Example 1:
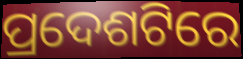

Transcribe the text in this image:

ପ୍ରଦେଶଟିରେ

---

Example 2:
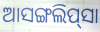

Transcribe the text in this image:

ଆସଙ୍ଗଲିପ୍‌ସା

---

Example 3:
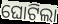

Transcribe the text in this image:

ଘୋଟିଲା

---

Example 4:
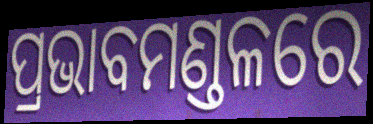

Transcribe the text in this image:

ପ୍ରଭାବମଣ୍ଡଳରେ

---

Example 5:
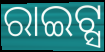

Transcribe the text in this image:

ରାଇଟ୍ସ